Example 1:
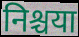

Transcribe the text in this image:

निश्चया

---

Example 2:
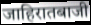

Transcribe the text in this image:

जाहिरातबाजी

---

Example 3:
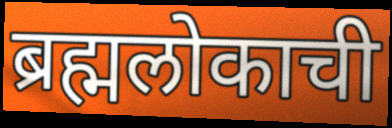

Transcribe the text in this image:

ब्रह्मलोकाची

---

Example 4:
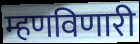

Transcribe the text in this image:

म्हणविणारी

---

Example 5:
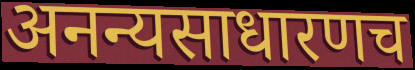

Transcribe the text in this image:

अनन्यसाधारणच